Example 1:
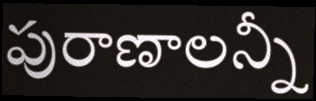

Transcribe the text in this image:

పురాణాలన్నీ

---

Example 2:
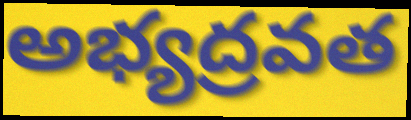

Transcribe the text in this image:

అభ్యద్రవత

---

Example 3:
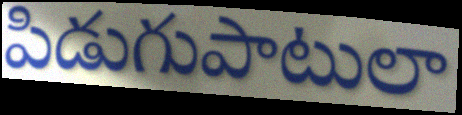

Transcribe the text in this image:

పిడుగుపాటులా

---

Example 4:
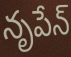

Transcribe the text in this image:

నృపేన్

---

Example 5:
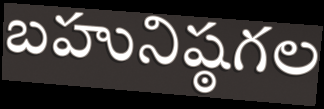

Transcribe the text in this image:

బహునిష్ఠగల